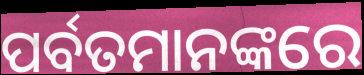
ପର୍ବତମାନଙ୍କରେ